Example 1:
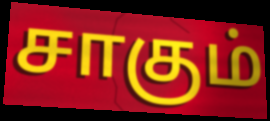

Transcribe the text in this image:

சாகும்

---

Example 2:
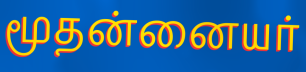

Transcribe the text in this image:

மூதன்னையர்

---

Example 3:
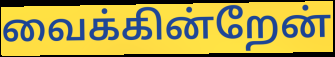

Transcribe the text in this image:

வைக்கின்றேன்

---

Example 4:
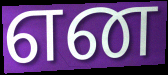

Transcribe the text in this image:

என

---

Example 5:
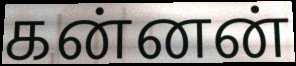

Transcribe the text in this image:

கன்னன்